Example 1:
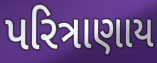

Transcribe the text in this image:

પરિત્રાણાય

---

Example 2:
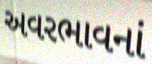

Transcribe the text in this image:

અવરભાવનાં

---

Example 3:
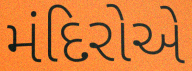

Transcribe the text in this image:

મંદિરોએ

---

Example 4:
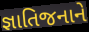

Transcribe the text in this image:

જ્ઞાતિજનાને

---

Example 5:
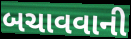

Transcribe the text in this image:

બચાવવાની